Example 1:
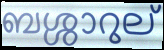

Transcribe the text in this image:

ബശ്ശാറുല്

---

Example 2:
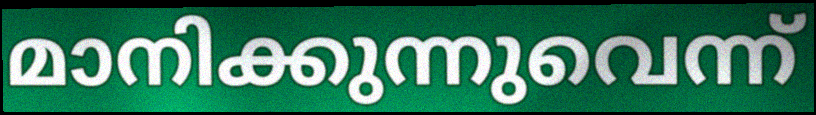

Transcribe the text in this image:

മാനിക്കുന്നുവെന്ന്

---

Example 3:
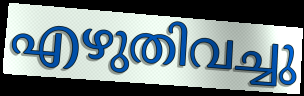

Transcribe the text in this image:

എഴുതിവച്ചു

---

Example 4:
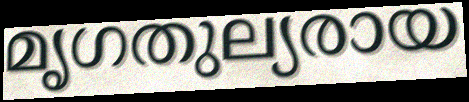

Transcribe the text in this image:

മൃഗതുല്യരായ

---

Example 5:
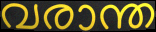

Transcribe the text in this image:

വരാന്ത